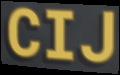
CIJ